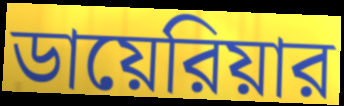
ডায়েরিয়ার